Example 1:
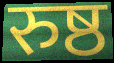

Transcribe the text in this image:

रुष्ठ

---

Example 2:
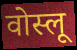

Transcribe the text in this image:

वोस्लू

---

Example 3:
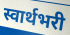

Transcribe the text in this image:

स्वार्थभरी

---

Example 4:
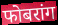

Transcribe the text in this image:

फोबरांग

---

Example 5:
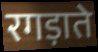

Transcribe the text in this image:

रगड़ाते